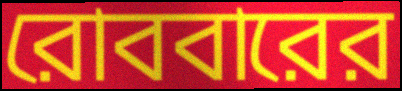
রোববারের